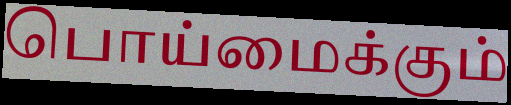
பொய்மைக்கும்